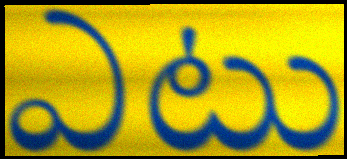
ఎటు